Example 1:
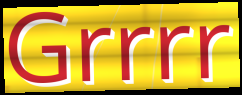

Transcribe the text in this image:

Grrrr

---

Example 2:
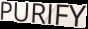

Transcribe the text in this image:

PURIFY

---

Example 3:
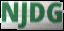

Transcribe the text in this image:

NJDG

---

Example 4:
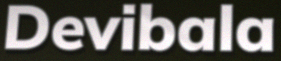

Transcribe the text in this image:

Devibala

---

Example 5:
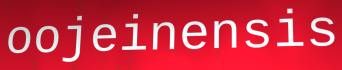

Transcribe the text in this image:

oojeinensis